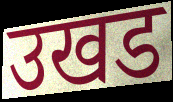
उखड